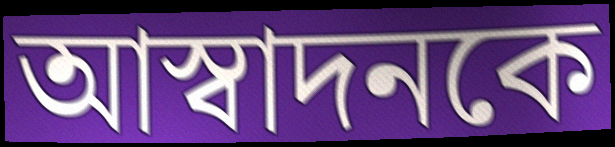
আস্বাদনকে